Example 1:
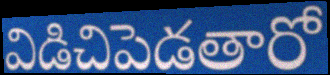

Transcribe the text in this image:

విడిచిపెడతారో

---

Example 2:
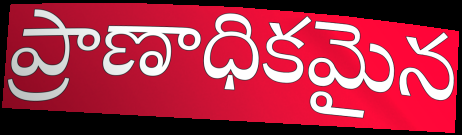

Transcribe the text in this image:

ప్రాణాధికమైన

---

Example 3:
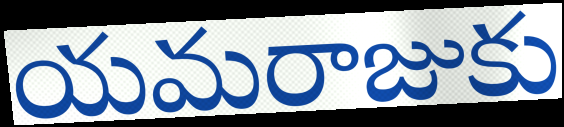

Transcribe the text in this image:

యమరాజుకు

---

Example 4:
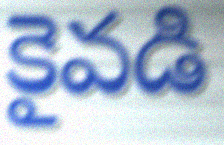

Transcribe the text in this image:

కైవడి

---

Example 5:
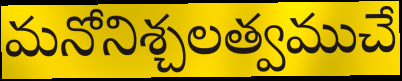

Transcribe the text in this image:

మనోనిశ్చలత్వముచే